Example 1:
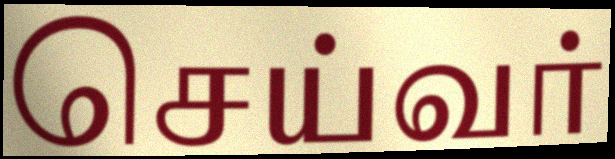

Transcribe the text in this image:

செய்வர்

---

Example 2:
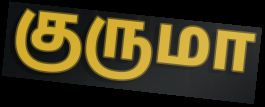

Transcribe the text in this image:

குருமா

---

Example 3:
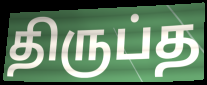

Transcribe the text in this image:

திருப்த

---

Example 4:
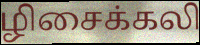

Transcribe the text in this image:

ழிசைக்கலி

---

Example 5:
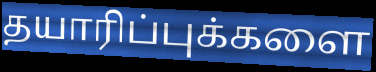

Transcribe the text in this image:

தயாரிப்புக்களை